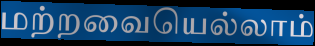
மற்றவையெல்லாம்